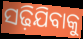
ସଢ଼ିଯିବାକୁ